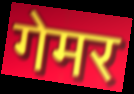
गेमर